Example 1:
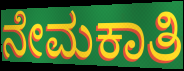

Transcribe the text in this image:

ನೇಮಕಾತಿ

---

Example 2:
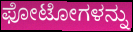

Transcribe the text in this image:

ಫೋಟೋಗಳನ್ನು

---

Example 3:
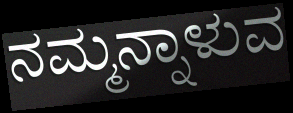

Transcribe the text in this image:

ನಮ್ಮನ್ನಾಳುವ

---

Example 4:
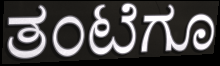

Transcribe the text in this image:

ತಂಟೆಗೂ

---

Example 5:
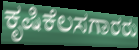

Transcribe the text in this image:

ಕೃಷಿಕೆಲಸಗಾರರು